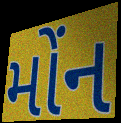
મોંન